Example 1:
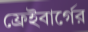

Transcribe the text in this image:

ফ্রেইবার্গের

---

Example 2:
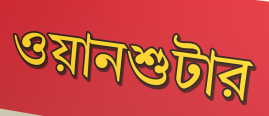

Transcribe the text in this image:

ওয়ানশুটার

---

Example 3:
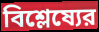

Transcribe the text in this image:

বিশ্লেষ্যের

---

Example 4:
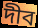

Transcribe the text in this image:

দীব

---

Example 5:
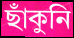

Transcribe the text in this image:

ছাঁকুনি